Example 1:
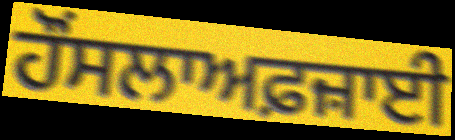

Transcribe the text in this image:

ਹੌਂਸਲਾਅਫ਼ਜ਼ਾਈ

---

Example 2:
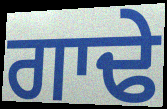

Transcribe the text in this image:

ਗਾਢੇ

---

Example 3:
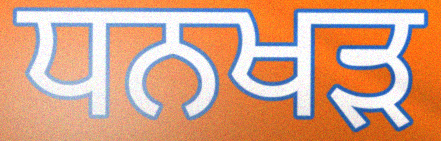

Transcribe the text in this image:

ਧਨਖਡ਼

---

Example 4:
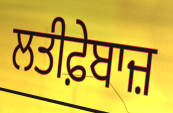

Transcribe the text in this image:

ਲਤੀਫ਼ੇਬਾਜ਼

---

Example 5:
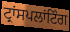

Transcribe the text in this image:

ਟ੍ਰਾਂਸਪਲਾਂਟਿੰਗ